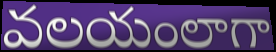
వలయంలాగా